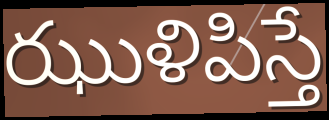
ఝుళిపిస్తే